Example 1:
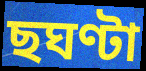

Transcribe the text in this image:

ছঘণ্টা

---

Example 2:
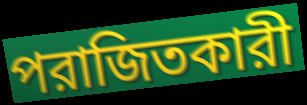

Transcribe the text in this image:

পরাজিতকারী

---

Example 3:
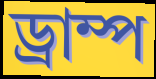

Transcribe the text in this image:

ড্রাম্প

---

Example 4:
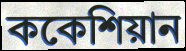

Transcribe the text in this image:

ককেশিয়ান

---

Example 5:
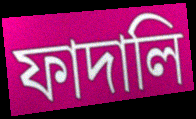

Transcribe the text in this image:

ফাদালি